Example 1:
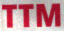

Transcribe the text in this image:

TTM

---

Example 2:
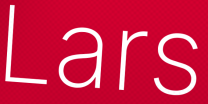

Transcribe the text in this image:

Lars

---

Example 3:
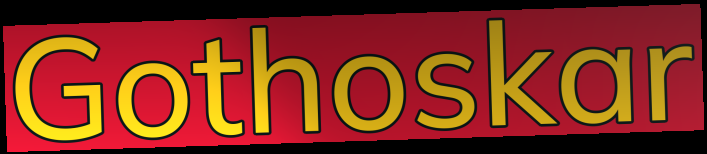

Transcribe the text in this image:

Gothoskar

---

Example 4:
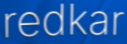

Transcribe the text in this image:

redkar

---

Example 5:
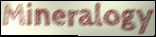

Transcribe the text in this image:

Mineralogy